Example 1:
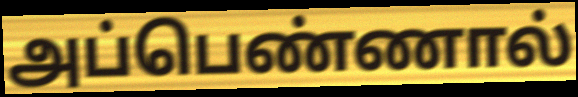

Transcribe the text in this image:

அப்பெண்ணால்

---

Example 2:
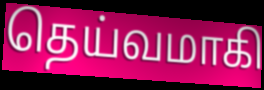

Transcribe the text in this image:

தெய்வமாகி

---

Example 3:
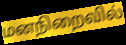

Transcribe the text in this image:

மனநிறைவில்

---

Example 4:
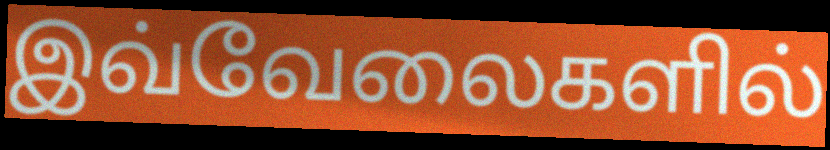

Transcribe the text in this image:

இவ்வேலைகளில்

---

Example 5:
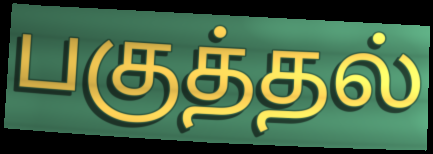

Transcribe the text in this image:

பகுத்தல்